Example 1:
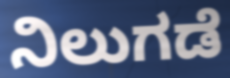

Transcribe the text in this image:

ನಿಲುಗಡೆ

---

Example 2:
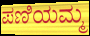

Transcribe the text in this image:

ಪಣಿಯಮ್ಮ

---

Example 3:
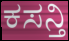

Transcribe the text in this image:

ಕಸನ್ತಿ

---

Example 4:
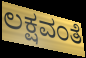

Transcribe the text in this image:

ಲಕ್ಷವಂತೆ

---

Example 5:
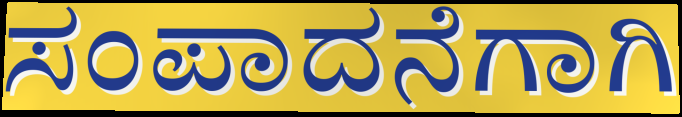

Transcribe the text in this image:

ಸಂಪಾದನೆಗಾಗಿ